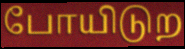
போயிடுற